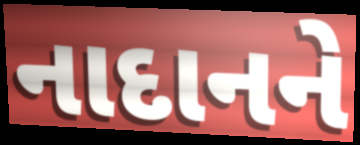
નાદાનને